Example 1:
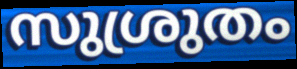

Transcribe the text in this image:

സുശ്രുതം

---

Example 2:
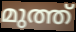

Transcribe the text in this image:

മുത്ത്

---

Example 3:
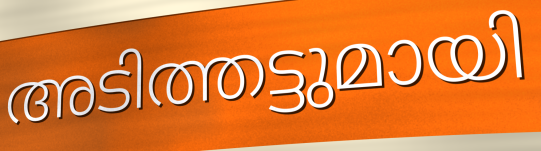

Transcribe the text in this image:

അടിത്തട്ടുമായി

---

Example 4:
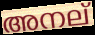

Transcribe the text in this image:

അനല്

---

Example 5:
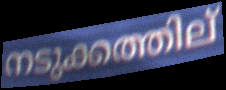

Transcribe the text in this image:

നടുക്കത്തില്